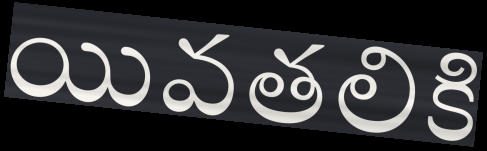
యివతలికి